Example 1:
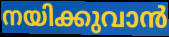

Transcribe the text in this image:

നയിക്കുവാൻ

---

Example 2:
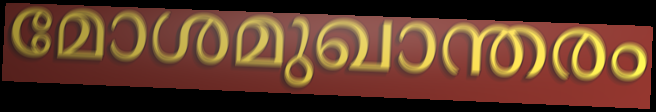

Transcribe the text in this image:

മോശമുഖാന്തരം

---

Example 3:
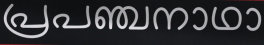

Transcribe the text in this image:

പ്രപഞ്ചനാഥാ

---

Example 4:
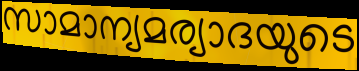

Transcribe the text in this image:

സാമാന്യമര്യാദയുടെ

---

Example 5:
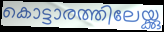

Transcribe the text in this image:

കൊട്ടാരത്തിലേയ്ക്കു